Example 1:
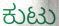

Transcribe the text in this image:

ಕುಟು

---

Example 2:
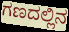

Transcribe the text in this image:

ಗಣದಲ್ಲಿನ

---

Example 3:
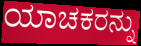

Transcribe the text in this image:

ಯಾಚಕರನ್ನು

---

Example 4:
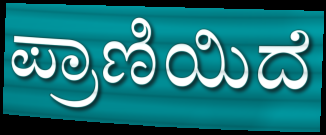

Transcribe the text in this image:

ಪ್ರಾಣಿಯಿದೆ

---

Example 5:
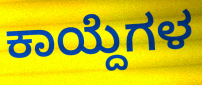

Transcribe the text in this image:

ಕಾಯ್ದೆಗಳ